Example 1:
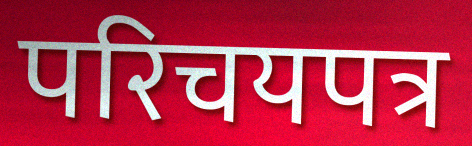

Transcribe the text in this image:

परिचयपत्र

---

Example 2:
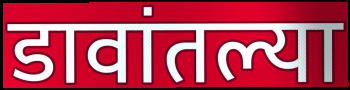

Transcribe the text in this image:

डावांतल्या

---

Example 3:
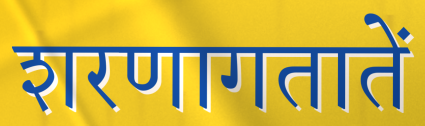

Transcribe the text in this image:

शरणागतातें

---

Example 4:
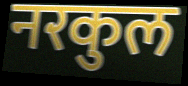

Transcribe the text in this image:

नरकुल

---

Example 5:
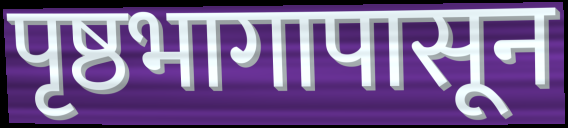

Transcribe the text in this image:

पृष्ठभागापासून